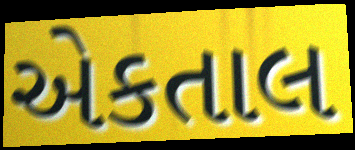
એકતાલ